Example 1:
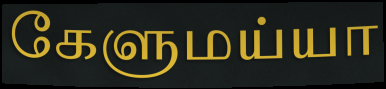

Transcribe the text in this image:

கேளுமய்யா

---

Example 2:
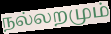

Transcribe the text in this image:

நல்லறமும்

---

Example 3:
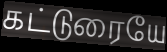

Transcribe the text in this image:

கட்டுரையே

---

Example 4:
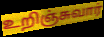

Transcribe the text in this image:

உறிஞ்சுவார்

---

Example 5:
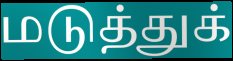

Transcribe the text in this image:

மடுத்துக்